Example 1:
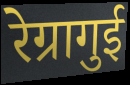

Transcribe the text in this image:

रेग्रागुई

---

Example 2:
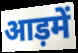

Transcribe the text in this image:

आड़में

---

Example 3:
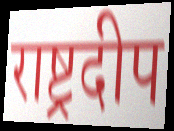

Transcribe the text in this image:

राष्ट्रदीप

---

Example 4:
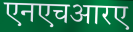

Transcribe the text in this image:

एनएचआरए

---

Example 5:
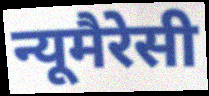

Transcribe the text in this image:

न्यूमैरेसी